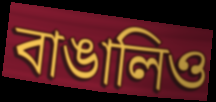
বাঙালিও